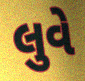
લુવે